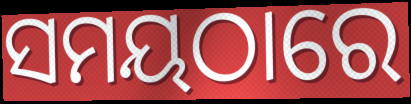
ସମୟଠାରେ